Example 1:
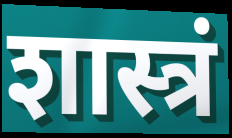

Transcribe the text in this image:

शास्त्रं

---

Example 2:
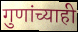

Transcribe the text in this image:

गुणांच्याही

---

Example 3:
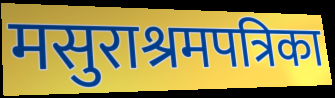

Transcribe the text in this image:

मसुराश्रमपत्रिका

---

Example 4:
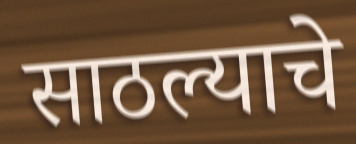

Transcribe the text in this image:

साठल्याचे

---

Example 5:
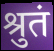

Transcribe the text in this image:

श्रुतं